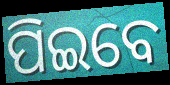
ପିଇବେ